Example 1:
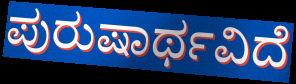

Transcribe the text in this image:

ಪುರುಷಾರ್ಥವಿದೆ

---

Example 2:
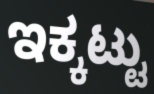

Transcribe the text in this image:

ಇಕ್ಕಟ್ಟು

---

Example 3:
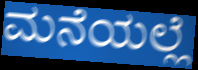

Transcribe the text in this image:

ಮನೆಯಲ್ಲೆ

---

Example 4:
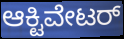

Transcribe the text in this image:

ಆಕ್ಟಿವೇಟರ್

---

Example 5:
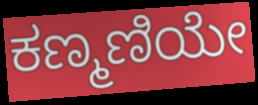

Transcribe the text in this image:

ಕಣ್ಮಣಿಯೇ